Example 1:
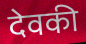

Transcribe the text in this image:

देवकी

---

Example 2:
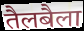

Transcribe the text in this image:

तैलबैला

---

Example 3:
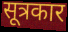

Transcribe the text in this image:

सूत्रकार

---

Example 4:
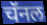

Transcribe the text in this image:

चॅनल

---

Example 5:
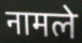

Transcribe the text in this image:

नामले